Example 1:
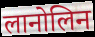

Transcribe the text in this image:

लानोलिन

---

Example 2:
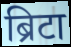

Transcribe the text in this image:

ब्रिटा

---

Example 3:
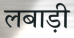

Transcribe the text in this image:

लबाड़ी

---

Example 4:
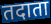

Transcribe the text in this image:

तदाता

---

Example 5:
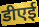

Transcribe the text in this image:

डीएई